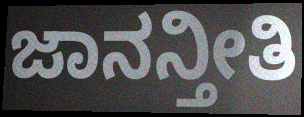
ಜಾನನ್ತೀತಿ